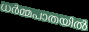
ധർമ്മപാതയിൽ